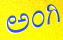
ಅಂಗಿ